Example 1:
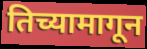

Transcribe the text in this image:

तिच्यामागून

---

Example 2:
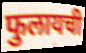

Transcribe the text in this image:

फुलायची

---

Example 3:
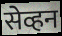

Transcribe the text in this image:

सेव्हन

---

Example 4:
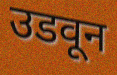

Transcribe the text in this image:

उडवून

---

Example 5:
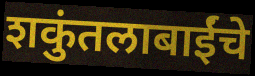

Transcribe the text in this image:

शकुंतलाबाईंचे